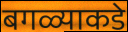
बगळ्याकडे